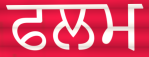
ਫਲਮ